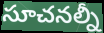
సూచనల్నీ